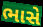
ભાસે